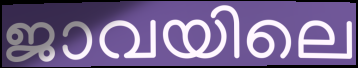
ജാവയിലെ